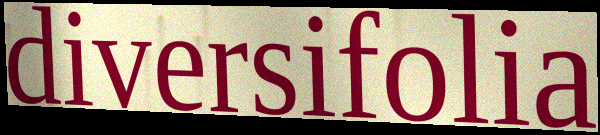
diversifolia